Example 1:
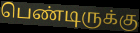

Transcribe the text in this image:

பெண்டிருக்கு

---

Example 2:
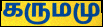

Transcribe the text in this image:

கருமமு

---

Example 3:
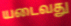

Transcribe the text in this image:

யடைவது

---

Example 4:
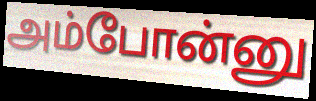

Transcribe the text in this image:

அம்போன்னு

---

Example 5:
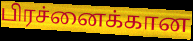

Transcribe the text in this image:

பிரச்னைக்கான